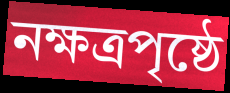
নক্ষত্রপৃষ্ঠে